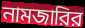
নামজারির